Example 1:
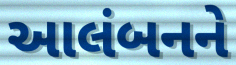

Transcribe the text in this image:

આલંબનને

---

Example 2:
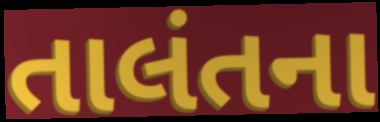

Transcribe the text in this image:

તાલંતના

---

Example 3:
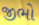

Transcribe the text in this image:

જીભો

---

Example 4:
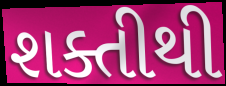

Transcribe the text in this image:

શક્તીથી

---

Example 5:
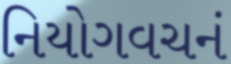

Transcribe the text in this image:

નિયોગવચનં